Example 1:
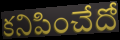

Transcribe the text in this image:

కనిపించేదో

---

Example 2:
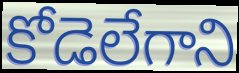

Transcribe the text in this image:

కోడెలేగాని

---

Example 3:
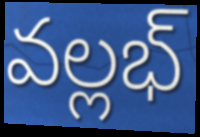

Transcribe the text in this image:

వల్లభ్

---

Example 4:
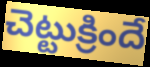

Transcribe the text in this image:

చెట్టుక్రిందే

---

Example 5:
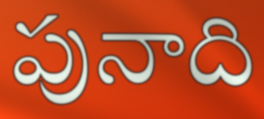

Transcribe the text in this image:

పునాది